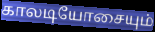
காலடியோசையும்